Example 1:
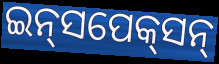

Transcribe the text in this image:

ଇନ୍‌ସପେକ୍‌ସନ୍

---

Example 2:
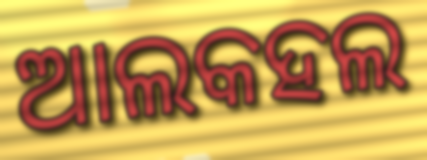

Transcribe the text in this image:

ଆଲକହଲ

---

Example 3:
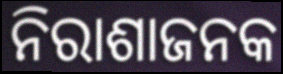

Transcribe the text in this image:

ନିରାଶାଜନକ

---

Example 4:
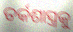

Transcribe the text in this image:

ତର୍କଶାସ୍ତ୍ରକୁ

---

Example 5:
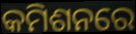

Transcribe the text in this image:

କମିଶନରେ